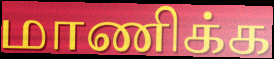
மாணிக்க